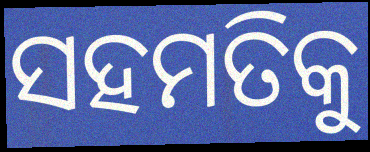
ସହମତିକୁ